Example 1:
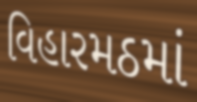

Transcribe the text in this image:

વિહારમઠમાં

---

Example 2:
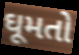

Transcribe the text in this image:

ઘૂમતો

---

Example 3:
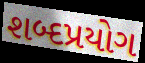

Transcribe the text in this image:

શબ્દપ્રયોગ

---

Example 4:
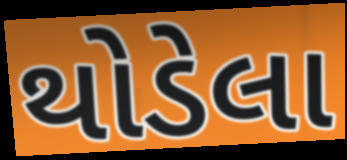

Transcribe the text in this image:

થોડેલા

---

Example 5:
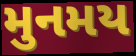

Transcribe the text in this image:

મુનમય